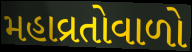
મહાવ્રતોવાળો